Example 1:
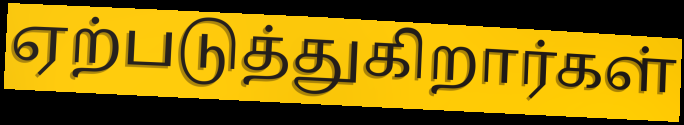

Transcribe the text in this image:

ஏற்படுத்துகிறார்கள்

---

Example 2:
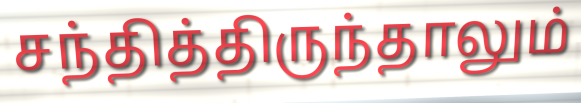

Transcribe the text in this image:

சந்தித்திருந்தாலும்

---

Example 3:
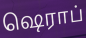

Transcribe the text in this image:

ஷெராப்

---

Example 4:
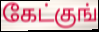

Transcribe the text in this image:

கேட்குங்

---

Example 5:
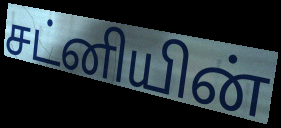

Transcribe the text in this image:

சட்னியின்